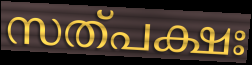
സത്പക്ഷഃ